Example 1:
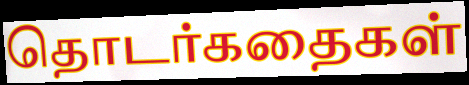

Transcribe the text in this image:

தொடர்கதைகள்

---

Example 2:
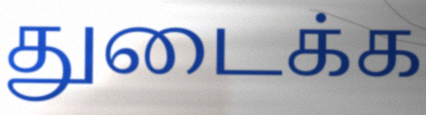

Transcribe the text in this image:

துடைக்க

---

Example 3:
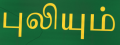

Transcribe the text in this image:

புலியும்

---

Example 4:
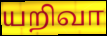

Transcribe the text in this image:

யறிவா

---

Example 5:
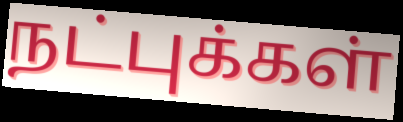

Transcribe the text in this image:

நட்புக்கள்